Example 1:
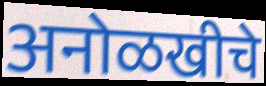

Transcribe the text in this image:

अनोळखीचे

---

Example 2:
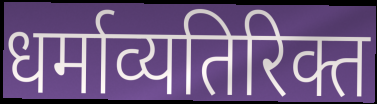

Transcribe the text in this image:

धर्माव्यतिरिक्त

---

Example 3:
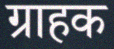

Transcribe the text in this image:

ग्राहक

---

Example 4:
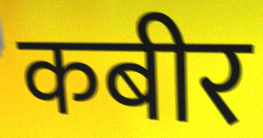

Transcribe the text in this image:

कबीर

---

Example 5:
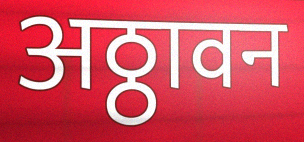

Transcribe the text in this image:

अठ्ठावन